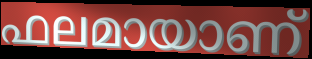
ഫലമായാണ്